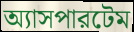
অ্যাসপারটেম